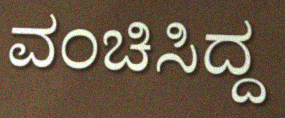
ವಂಚಿಸಿದ್ದ